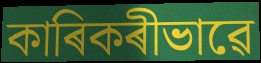
কাৰিকৰীভাৱে